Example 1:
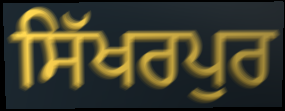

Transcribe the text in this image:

ਸਿੱਖਰਪੁਰ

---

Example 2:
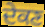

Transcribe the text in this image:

ਦੇਕਣ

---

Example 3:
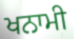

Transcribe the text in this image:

ਖਨਾਮੀ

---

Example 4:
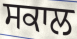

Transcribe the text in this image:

ਸਕਾਲ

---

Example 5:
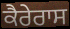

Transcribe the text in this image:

ਕੈਰੇਰਾਸ